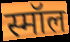
स्मॉल